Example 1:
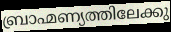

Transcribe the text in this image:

ബ്രാഹ്മണ്യത്തിലേക്കു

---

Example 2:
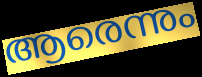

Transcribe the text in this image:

ആരെന്നും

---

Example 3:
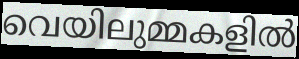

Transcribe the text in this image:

വെയിലുമ്മകളിൽ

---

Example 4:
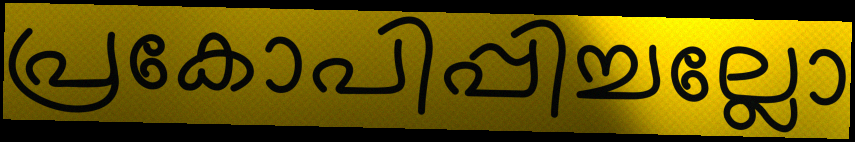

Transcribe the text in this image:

പ്രകോപിപ്പിച്ചല്ലോ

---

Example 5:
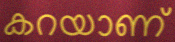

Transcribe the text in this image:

കറയാണ്